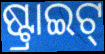
ଷ୍ଟ୍ରାଇଟ୍